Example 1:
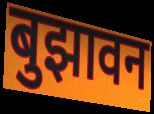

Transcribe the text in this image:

बुझावन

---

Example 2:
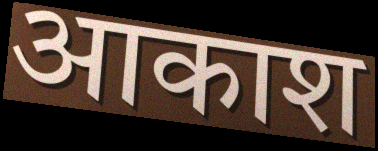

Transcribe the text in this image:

आकाश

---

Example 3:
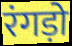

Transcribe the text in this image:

रंगड़ो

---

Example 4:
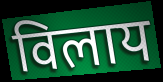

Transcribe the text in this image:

विलाय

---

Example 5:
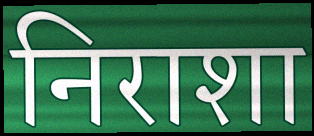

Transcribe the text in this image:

निराशा